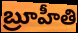
బ్రూహీతి